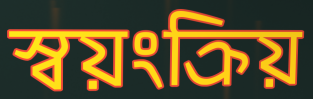
স্বয়ংক্রিয়